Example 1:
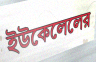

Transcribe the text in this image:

ইউকেলেলের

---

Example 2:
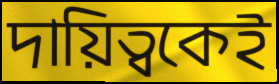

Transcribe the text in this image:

দায়িত্বকেই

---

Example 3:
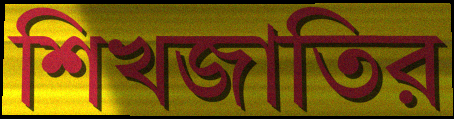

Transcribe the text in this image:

শিখজাতির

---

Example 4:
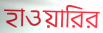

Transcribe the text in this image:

হাওয়ারির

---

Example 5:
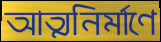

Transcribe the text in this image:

আত্মনির্মাণে